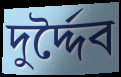
দুর্দ্দৈব